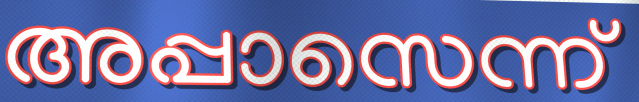
അപ്പാസെന്ന്